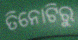
ତିନୋଟିରୁ